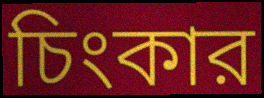
চিংকার